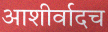
आशीर्वादच